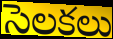
సెలకలు